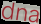
dna